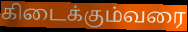
கிடைக்கும்வரை